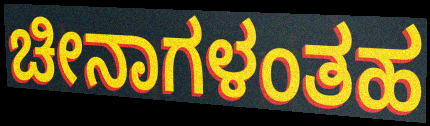
ಚೀನಾಗಳಂತಹ